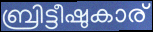
ബ്രിട്ടീഷുകാര്